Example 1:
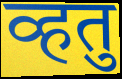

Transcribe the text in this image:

व्हतु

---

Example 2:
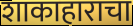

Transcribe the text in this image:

शाकाहाराचा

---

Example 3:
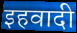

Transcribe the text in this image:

इहवादी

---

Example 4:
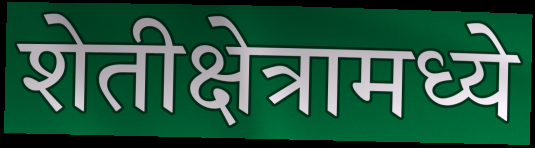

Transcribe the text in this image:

शेतीक्षेत्रामध्ये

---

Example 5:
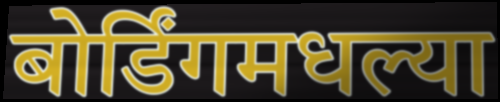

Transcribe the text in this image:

बोर्डिंगमधल्या